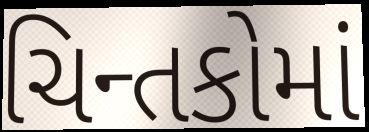
ચિન્તકોમાં